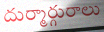
దుర్మార్గురాలు